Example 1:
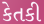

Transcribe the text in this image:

કેતકી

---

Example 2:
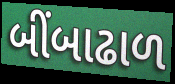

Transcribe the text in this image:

બીંબાઢાળ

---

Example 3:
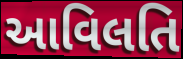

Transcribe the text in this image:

આવિલતિ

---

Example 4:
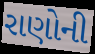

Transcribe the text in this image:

રાણોની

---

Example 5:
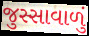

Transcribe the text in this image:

જુસ્સાવાળું